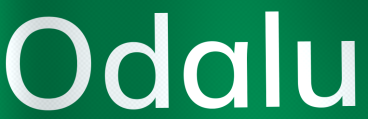
Odalu